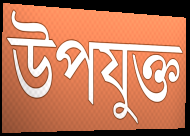
উপযুক্ত